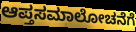
ಆಪ್ತಸಮಾಲೋಚನೆಗೆ